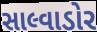
સાલ્વાડોર